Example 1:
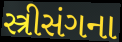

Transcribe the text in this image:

સ્ત્રીસંગના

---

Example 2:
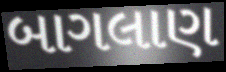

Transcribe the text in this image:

બાગલાણ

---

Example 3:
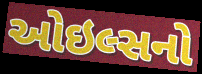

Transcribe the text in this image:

ઓઇલ્સનો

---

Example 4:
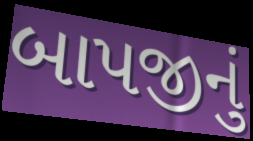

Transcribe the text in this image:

બાપજીનું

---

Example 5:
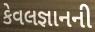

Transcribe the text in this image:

કેવલજ્ઞાનની